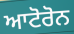
ਆਟੋਰੋਨ